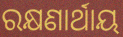
ରକ୍ଷଣାର୍ଥାୟ